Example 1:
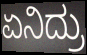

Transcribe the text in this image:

ಏನಿದ್ರು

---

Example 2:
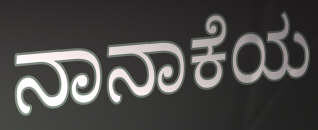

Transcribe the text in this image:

ನಾನಾಕೆಯ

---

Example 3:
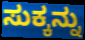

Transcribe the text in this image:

ಸುಕ್ಕನ್ನು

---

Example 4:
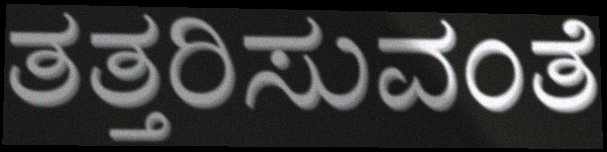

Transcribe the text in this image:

ತತ್ತರಿಸುವಂತೆ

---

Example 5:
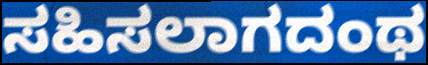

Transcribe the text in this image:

ಸಹಿಸಲಾಗದಂಥ